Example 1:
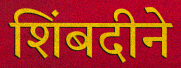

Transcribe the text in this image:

शिंबदीने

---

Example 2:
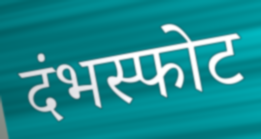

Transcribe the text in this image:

दंभस्फोट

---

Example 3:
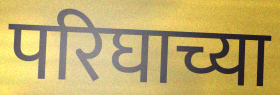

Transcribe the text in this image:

परिघाच्या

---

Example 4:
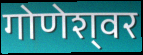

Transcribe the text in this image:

गोणेश्वर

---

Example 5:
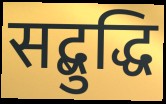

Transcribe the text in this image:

सद्बुद्धि